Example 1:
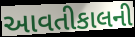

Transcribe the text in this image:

આવતીકાલની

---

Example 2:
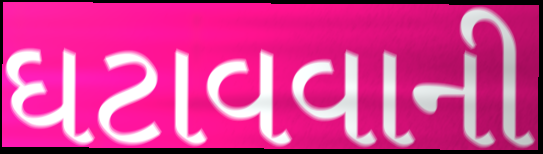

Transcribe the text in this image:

ઘટાવવાની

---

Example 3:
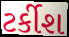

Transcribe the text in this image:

ટર્કીશ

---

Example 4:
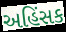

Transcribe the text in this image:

અહિંસક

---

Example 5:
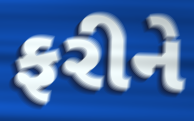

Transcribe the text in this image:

ફરીને